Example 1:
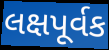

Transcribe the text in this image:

લક્ષપૂર્વક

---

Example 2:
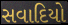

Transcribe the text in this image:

સવાદિયો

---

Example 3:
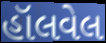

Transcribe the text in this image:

હૉલવેલ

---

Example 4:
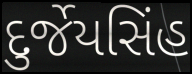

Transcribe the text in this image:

દુર્જેયસિંહ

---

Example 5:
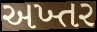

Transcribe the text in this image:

અખ્તર